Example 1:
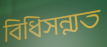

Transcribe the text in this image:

বিধিসন্মত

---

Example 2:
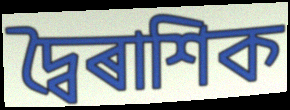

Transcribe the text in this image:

দ্বৈৰাশিক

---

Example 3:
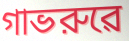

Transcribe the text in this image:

গাভৰুৱে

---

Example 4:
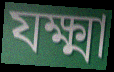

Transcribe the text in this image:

যক্ষ্মা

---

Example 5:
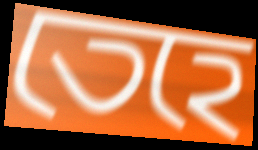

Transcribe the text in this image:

তেহে